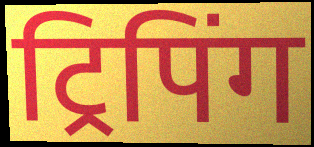
ट्रिपिंग